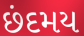
છંદમય